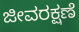
ಜೀವರಕ್ಷಣೆ